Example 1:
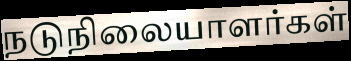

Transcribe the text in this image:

நடுநிலையாளர்கள்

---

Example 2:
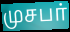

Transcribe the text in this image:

முசபர்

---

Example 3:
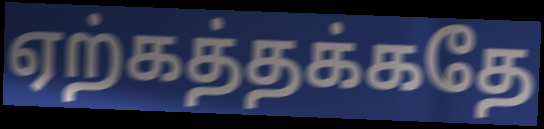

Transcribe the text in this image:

ஏற்கத்தக்கதே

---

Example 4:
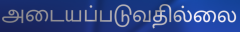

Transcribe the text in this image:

அடையப்படுவதில்லை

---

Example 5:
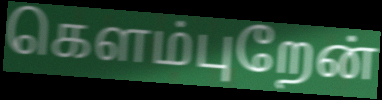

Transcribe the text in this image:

கெளம்புறேன்